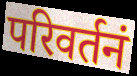
परिवर्तनं